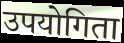
उपयोगिता